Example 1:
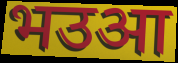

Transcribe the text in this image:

भउआ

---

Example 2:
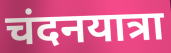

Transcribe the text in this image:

चंदनयात्रा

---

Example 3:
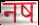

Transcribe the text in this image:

नष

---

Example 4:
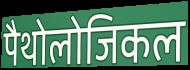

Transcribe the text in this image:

पैथोलोजिकल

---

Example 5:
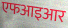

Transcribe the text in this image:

एफआइआर